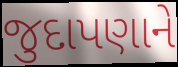
જુદાપણાને